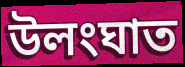
উলংঘাত